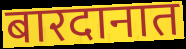
बारदानात